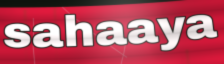
sahaaya